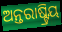
ଅନ୍ତରାଷ୍ଟ୍ରିୟ